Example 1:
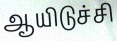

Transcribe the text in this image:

ஆயிடுச்சி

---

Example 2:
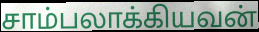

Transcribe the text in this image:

சாம்பலாக்கியவன்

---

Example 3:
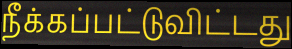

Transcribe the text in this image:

நீக்கப்பட்டுவிட்டது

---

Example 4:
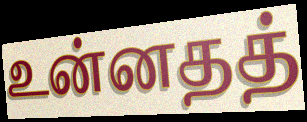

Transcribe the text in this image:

உன்னதத்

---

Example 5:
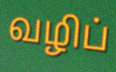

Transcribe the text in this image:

வழிப்